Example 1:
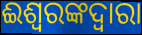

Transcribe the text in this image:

ଈଶ୍ୱରଙ୍କଦ୍ୱାରା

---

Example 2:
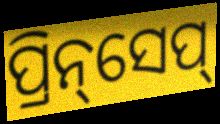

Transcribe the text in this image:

ପ୍ରିନ୍‌ସେପ୍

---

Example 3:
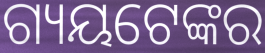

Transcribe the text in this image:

ଗ୍ୟୟଟେଙ୍କର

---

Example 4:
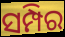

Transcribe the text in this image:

ସମ୍ପିର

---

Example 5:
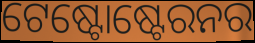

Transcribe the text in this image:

ଟେଷ୍ଟୋଷ୍ଟେରନର